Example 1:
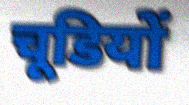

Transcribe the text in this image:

चूडियों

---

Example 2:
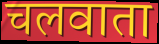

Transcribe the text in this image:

चलवाता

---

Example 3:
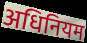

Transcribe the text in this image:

अधिनियम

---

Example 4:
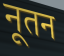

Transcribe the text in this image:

नूतन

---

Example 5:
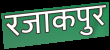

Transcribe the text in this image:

रजाकपुर